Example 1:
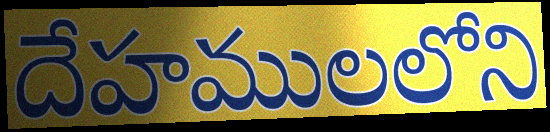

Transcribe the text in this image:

దేహములలోని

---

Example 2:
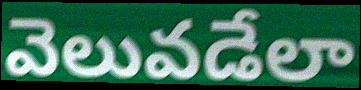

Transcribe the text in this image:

వెలువడేలా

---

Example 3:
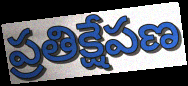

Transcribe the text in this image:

ప్రతిక్షేపణ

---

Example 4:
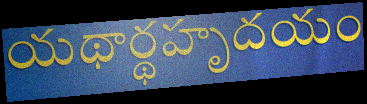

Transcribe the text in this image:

యథార్థహృదయం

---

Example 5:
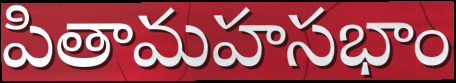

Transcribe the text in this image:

పితామహసభాం